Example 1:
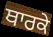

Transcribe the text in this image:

ਥਾਰਕੇ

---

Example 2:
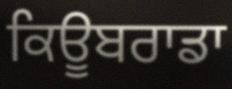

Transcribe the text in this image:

ਕਿਊਬਰਾਡਾ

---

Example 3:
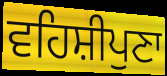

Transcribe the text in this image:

ਵਹਿਸ਼ੀਪੁਣਾ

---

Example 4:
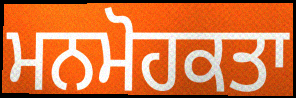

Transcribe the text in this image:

ਮਨਮੋਹਕਤਾ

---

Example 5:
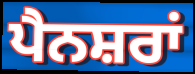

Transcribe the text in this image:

ਪੈਨਸ਼ਰਾਂ